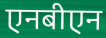
एनबीएन